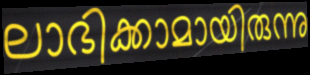
ലാഭിക്കാമായിരുന്നു